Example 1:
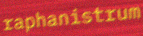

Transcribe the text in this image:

raphanistrum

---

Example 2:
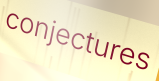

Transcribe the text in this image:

conjectures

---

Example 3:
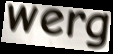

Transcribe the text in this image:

werg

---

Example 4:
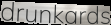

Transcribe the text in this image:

drunkards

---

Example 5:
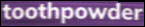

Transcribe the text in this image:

toothpowder